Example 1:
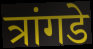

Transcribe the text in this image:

त्रांगडे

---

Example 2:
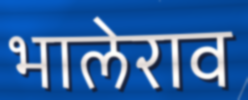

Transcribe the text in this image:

भालेराव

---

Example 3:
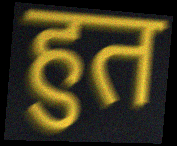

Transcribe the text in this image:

हुत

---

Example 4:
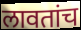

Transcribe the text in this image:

लावतांच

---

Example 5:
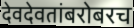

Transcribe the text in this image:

देवदेवतांबरोबरच